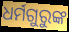
ଧର୍ମଗୁରୁଙ୍କ